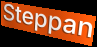
Steppan